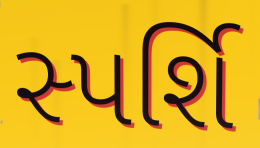
સ્પર્શિ